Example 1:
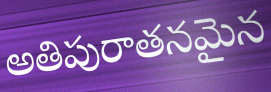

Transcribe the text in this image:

అతిపురాతనమైన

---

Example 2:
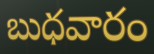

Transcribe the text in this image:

బుధవారం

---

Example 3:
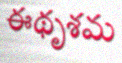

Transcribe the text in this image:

ఈథృశమ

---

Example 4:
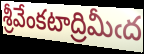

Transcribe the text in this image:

శ్రీవేంకటాద్రిమీఁద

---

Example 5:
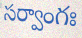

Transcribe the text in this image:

సర్వాంగః